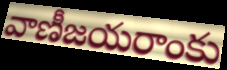
వాణీజయరాంకు